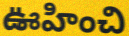
ఊహించి